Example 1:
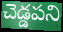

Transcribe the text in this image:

చెడ్డపని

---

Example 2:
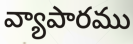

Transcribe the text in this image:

వ్యాపారము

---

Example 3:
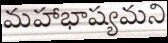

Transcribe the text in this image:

మహాభాష్యమని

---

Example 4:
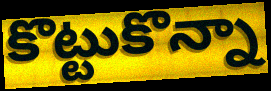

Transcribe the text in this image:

కొట్టుకొన్నా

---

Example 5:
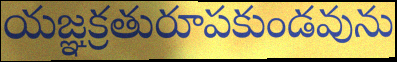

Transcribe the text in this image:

యజ్ఞక్రతురూపకుండవును